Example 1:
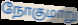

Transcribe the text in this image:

நோகுமாறு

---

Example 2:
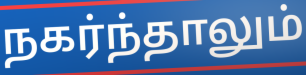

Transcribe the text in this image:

நகர்ந்தாலும்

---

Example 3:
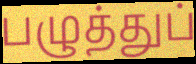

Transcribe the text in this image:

பழுத்துப்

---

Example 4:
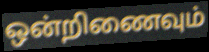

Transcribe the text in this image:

ஒன்றிணைவும்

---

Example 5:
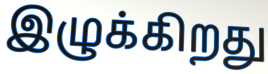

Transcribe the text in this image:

இழுக்கிறது